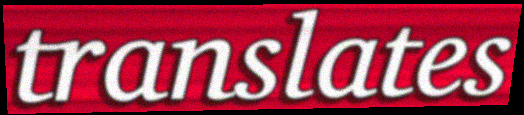
translates